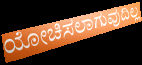
ಯೋಚಿಸಲಾಗುವುದಿಲ್ಲ